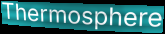
Thermosphere